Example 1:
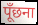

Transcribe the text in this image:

पूँछना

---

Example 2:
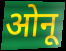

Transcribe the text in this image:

ओनू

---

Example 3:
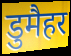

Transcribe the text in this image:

डुमैहर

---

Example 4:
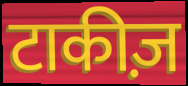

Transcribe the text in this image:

टाकीज़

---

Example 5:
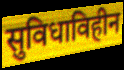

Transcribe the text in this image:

सुविधाविहीन